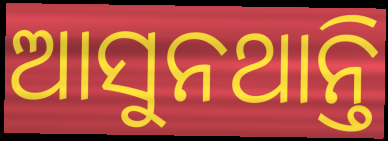
ଆସୁନଥାନ୍ତି